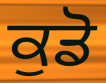
ਕੁਡੋ